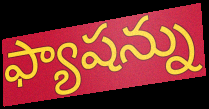
ఫ్యాషన్ను